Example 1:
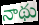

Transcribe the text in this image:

నాథు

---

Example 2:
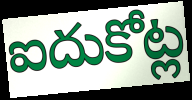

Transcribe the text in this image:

ఐదుకోట్ల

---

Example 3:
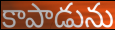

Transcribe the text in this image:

కాపాడును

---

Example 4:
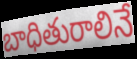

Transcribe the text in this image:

బాధితురాలినే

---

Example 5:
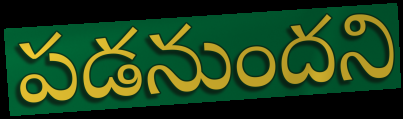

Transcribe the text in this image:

పడనుందని